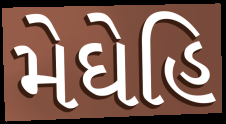
મેઘેહિ